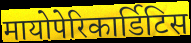
मायोपेरिकार्डिटिस